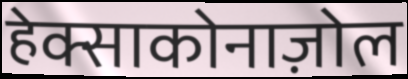
हेक्साकोनाज़ोल